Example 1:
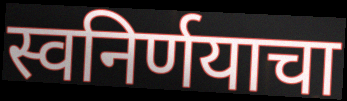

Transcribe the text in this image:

स्वनिर्णयाचा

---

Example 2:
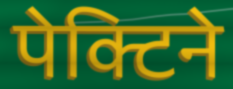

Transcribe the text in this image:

पेक्टिने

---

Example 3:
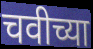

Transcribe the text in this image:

चवीच्या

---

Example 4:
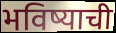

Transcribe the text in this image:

भविष्याची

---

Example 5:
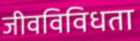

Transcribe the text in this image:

जीवविविधता